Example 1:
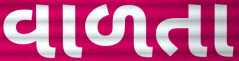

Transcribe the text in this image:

વાળતા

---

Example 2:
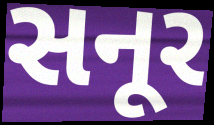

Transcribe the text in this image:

સનૂર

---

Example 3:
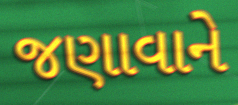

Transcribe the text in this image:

જણાવાને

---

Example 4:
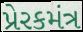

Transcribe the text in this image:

પ્રેરકમંત્ર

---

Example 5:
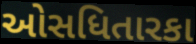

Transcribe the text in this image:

ઓસધિતારકા